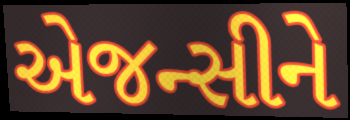
એજન્સીને